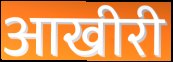
आखीरी